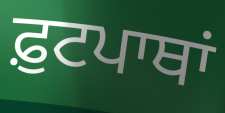
ਫ਼ੁਟਪਾਥਾਂ